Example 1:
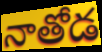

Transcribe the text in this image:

నాతోడ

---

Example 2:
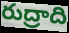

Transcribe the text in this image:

రుద్రాది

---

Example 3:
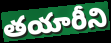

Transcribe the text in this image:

తయారీని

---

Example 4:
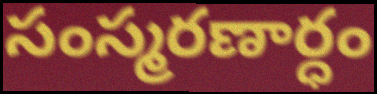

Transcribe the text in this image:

సంస్మరణార్ధం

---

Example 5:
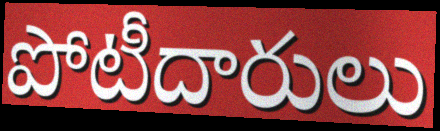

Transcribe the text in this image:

పోటీదారులు